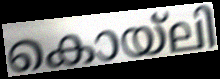
കൊയ്ലി